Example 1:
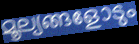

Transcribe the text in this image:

മൂല്യങ്ങളോടും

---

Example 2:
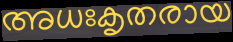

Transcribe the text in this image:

അധഃകൃതരായ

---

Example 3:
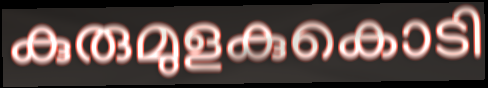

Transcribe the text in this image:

കുരുമുളകുകൊടി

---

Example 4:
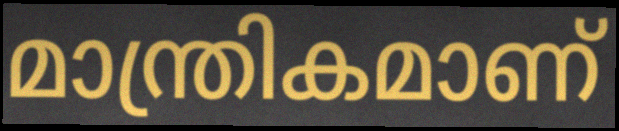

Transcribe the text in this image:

മാന്ത്രികമാണ്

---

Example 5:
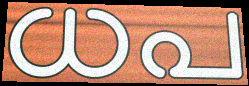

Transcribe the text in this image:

ധപ